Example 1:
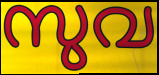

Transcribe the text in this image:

സുവ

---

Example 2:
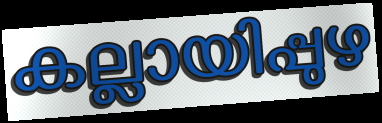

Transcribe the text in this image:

കല്ലായിപ്പുഴ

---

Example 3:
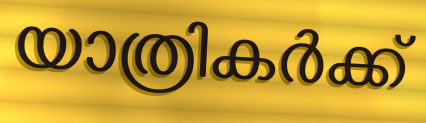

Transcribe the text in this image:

യാത്രികർക്ക്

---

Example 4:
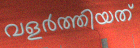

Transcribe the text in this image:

വളർത്തിയത്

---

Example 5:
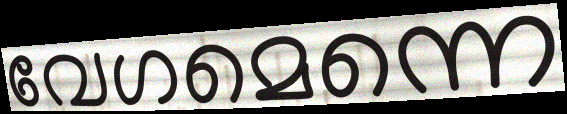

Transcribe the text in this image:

വേഗമെന്നെ